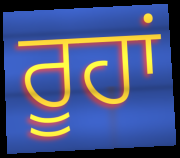
ਰੂਹਾਂ